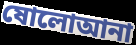
ষোলোআনা